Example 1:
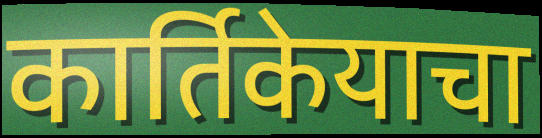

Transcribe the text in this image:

कार्तिकेयाचा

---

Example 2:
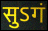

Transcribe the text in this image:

सुऽगं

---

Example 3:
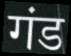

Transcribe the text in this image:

गंड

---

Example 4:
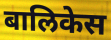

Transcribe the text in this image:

बालिकेस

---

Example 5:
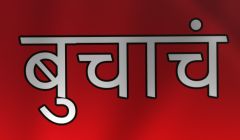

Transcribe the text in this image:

बुचाचं